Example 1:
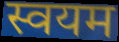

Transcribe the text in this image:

स्वयम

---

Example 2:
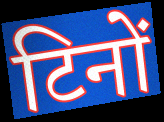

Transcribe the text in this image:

टिनों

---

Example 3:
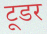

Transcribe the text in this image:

टूडर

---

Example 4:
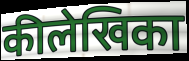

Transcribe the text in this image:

कीलेखिका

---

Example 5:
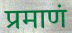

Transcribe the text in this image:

प्रमाणं